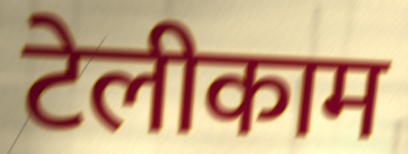
टेलीकाम